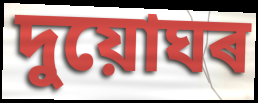
দুয়োঘৰ